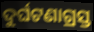
ଦୁର୍ଘଟଣାଗ୍ରସ୍ତ